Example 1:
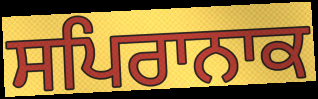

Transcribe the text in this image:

ਸਪਿਰਾਨਾਕ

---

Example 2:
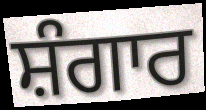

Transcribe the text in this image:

ਸ਼ੰਗਾਰ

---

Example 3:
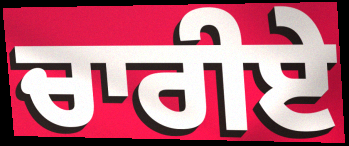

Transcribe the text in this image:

ਚਾਰੀਏ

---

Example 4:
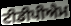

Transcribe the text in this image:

ਟੀਡੀਪੀਐਮ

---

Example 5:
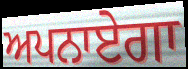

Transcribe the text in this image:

ਅਪਨਾਏਗਾ